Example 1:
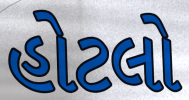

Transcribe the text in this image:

હોટલો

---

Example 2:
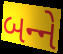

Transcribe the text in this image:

બન્‍ને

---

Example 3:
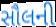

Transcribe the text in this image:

સૌલની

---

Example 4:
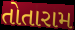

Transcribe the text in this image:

તોતારામ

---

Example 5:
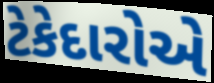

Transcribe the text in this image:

ટેકેદારોએ